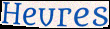
Heures